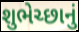
શુભેચ્છાનું